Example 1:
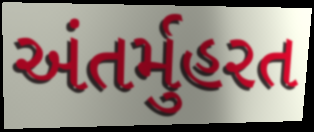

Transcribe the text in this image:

અંતર્મુહરત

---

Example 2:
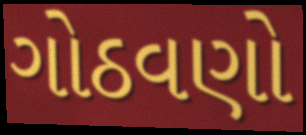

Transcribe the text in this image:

ગોઠવણો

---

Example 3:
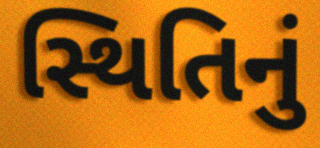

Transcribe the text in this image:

સ્થિતિનું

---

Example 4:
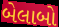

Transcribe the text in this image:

બેલાબો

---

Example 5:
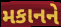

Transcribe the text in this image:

મકાનને